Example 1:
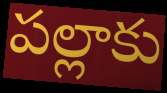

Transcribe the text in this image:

పల్లాకు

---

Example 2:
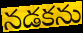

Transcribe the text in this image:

నడకను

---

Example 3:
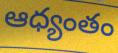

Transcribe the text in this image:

ఆధ్యంతం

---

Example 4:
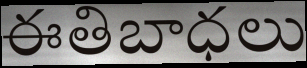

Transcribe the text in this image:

ఈతిబాధలు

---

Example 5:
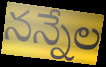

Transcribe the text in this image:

నన్నేల